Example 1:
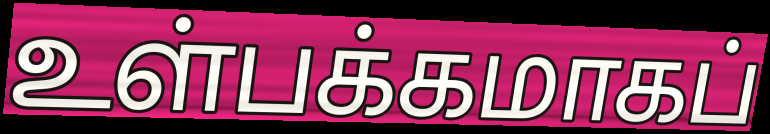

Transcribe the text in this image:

உள்பக்கமாகப்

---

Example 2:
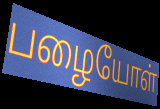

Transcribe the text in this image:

பழையோள்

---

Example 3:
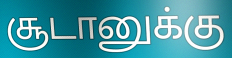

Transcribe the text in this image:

சூடானுக்கு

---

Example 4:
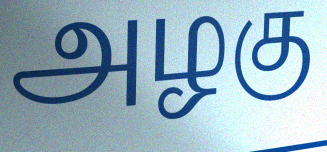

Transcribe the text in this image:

அழகு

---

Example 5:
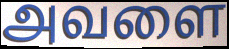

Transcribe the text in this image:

அவளை